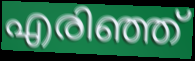
എരിഞ്ഞ്